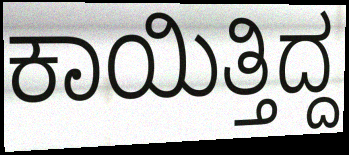
ಕಾಯಿತ್ತಿದ್ದ